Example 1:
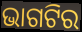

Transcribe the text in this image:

ଭାଗଟିର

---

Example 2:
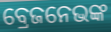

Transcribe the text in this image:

ବ୍ରେଜନେଭଙ୍କ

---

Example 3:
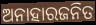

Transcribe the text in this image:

ଅନାହାରଜନିତ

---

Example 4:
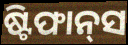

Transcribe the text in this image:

ଷ୍ଟିଫାନ୍‍ସ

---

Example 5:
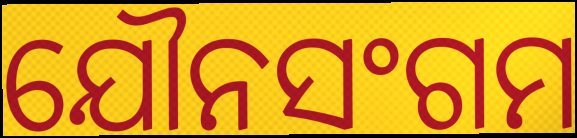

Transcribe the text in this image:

ଯୌନସଂଗମ